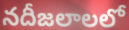
నదీజలాలలో